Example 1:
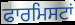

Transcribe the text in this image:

ਫਾਰਮਿਸਟਾਂ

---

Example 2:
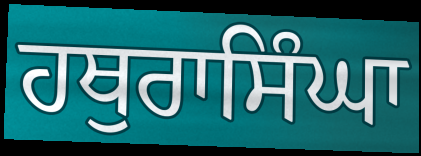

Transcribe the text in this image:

ਹਥੁਰਾਸਿੰਘਾ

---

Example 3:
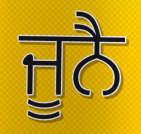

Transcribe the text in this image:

ਜੂਨੈ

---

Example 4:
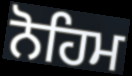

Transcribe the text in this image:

ਨੋਹਿਮ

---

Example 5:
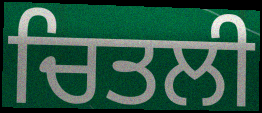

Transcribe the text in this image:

ਚਿਤਲੀ